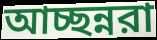
আচ্ছন্নরা